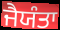
ਜੈਯੰਤਾ